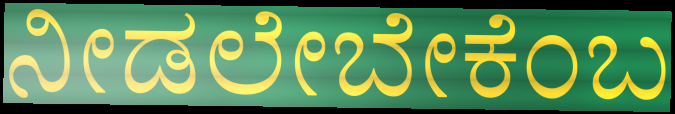
ನೀಡಲೇಬೇಕೆಂಬ